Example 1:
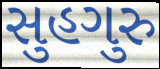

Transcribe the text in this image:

સુહગુરુ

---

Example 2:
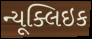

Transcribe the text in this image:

ન્યૂક્લિઇક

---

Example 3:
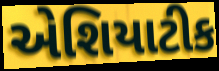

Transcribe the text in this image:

એશિયાટીક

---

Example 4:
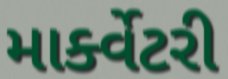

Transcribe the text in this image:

માર્ક્વેટરી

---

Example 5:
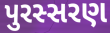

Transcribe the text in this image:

પુરસ્સરણ